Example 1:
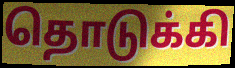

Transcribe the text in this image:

தொடுக்கி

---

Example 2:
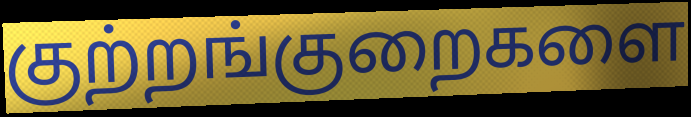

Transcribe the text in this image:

குற்றங்குறைகளை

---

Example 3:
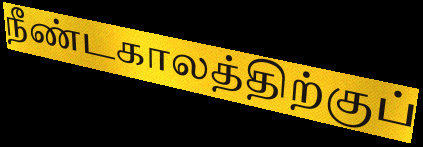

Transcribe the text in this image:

நீண்டகாலத்திற்குப்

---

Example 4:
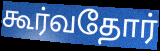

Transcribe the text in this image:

கூர்வதோர்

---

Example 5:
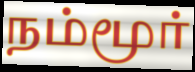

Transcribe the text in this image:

நம்மூர்